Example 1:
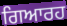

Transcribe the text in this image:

ਗਿਆਰਹ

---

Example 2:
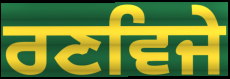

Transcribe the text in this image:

ਰਣਵਿਜੇ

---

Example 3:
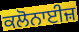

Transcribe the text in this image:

ਕਲੋਨਾਈਜ਼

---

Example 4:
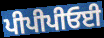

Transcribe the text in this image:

ਪੀਪੀਪੀਓਈ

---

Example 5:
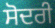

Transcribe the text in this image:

ਸੋਦਰੀ